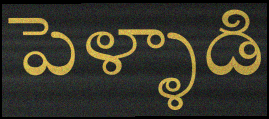
పెళ్ళాడి